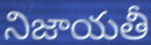
నిజాయతీ